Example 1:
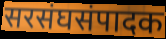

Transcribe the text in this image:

सरसंघसंपादक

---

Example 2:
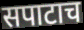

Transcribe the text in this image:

सपाटाच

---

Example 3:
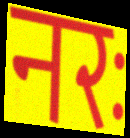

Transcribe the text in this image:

नरः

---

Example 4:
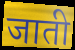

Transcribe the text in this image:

जाती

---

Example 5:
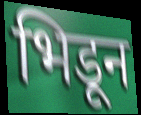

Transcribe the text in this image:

भिडून